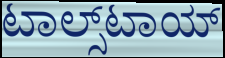
ಟಾಲ್ಸ್‌ಟಾಯ್